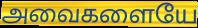
அவைகளையே